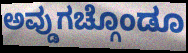
ಅವ್ಡುಗಚ್ಗೊಂಡೂ